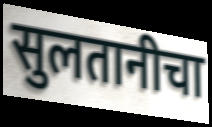
सुलतानीचा